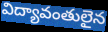
విద్యావంతులైన